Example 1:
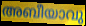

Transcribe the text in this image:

അബീയാവു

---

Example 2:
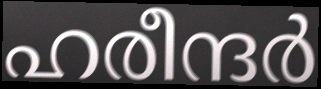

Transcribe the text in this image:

ഹരീന്ദർ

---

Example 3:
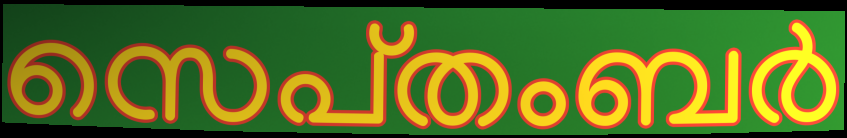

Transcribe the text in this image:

സെപ്‌തംബർ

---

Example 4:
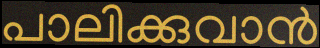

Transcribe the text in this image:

പാലിക്കുവാൻ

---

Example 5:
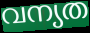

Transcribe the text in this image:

വന്യത